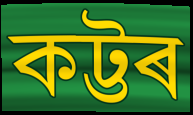
কট্টৰ